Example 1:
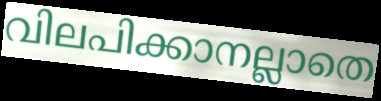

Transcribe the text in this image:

വിലപിക്കാനല്ലാതെ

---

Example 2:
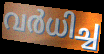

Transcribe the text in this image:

വർധിച്ച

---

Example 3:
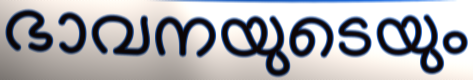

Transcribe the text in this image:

ഭാവനയുടെയും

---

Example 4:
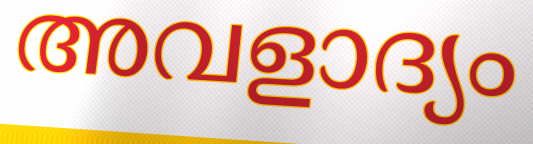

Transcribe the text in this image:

അവളാദ്യം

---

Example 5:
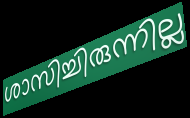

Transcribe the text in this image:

ശാസിച്ചിരുന്നില്ല